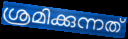
ശ്രമിക്കുന്നത്